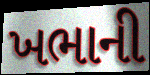
ખભાની